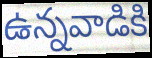
ఉన్నవాడికి